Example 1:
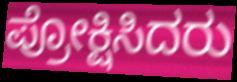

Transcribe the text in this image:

ಪ್ರೋಕ್ಷಿಸಿದರು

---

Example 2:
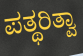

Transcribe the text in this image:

ಪತ್ಥರಿತ್ವಾ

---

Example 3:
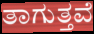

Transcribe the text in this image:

ತಾಗುತ್ತವೆ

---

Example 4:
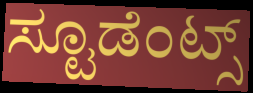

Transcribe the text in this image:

ಸ್ಟೂಡೆಂಟ್ಸ್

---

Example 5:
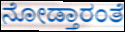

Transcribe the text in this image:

ನೋಡ್ತಾರಂತೆ